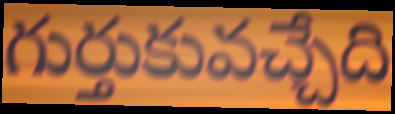
గుర్తుకువచ్చేది